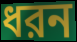
ধরন